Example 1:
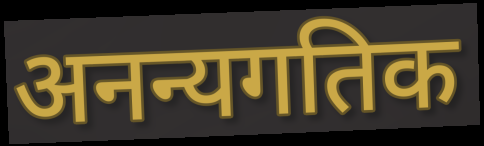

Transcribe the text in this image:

अनन्यगतिक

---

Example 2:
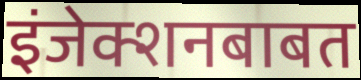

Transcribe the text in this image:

इंजेक्शनबाबत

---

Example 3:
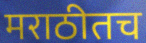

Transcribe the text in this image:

मराठीतच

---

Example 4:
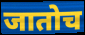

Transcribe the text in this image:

जातोच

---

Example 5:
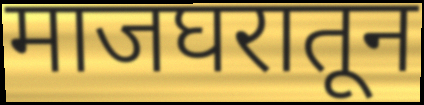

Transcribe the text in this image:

माजघरातून